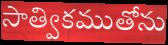
సాత్వికముతోను